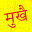
मुखै